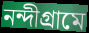
নন্দীগ্রামে